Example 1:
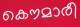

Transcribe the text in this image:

കൌമാരീ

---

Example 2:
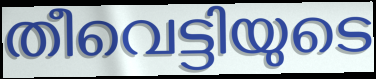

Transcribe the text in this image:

തീവെട്ടിയുടെ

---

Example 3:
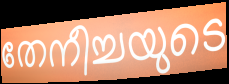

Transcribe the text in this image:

തേനീച്ചയുടെ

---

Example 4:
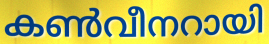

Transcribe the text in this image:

കൺവീനറായി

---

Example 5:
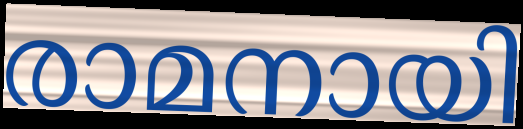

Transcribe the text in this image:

രാമനായി